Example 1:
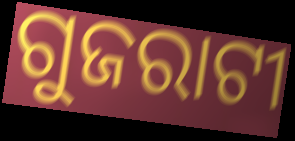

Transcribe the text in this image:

ଗୁଜରାଟୀ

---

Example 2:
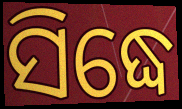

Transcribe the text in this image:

ସିଦ୍ଧେ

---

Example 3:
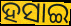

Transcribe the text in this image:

ହସାଇ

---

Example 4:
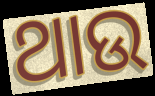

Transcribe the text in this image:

ଥାଉ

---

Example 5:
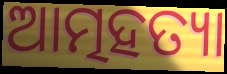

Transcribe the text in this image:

ଆତ୍ମହତ୍ୟା